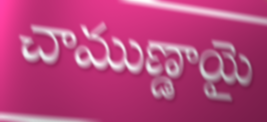
చాముణ్డాయై